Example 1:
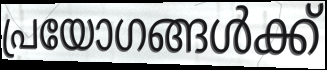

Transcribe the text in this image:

പ്രയോഗങ്ങൾക്ക്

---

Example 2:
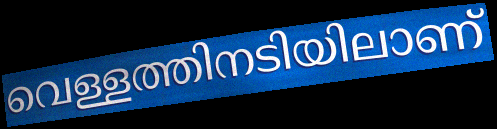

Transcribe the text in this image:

വെള്ളത്തിനടിയിലാണ്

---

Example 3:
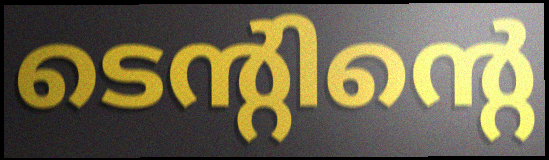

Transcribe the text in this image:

ടെന്റിന്റെ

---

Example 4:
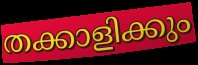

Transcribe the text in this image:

തക്കാളിക്കും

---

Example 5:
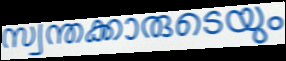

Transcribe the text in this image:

സ്വന്തക്കാരുടെയും